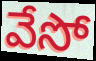
వేసో